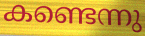
കണ്ടെന്നു